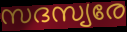
സദസ്യരേ